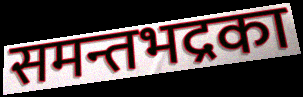
समन्तभद्रका